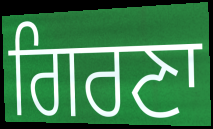
ਗਿਰਣਾ